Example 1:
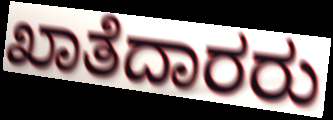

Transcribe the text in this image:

ಖಾತೆದಾರರು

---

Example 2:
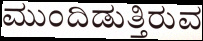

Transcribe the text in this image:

ಮುಂದಿಡುತ್ತಿರುವ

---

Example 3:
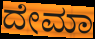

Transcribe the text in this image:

ದೇಮಾ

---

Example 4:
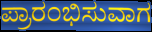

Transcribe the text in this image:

ಪ್ರಾರಂಭಿಸುವಾಗ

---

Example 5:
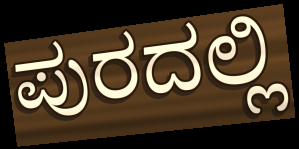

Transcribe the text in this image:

ಪುರದಲ್ಲಿ